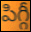
పిగ్గీ